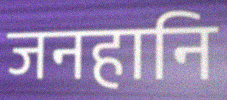
जनहानि